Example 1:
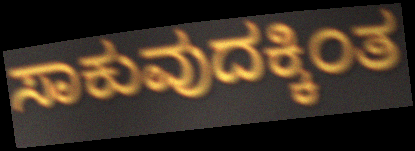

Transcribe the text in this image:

ಸಾಕುವುದಕ್ಕಿಂತ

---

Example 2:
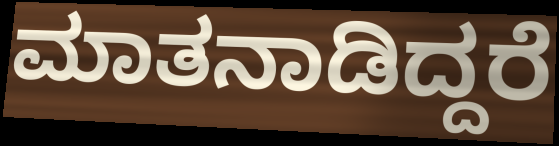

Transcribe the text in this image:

ಮಾತನಾಡಿದ್ದರೆ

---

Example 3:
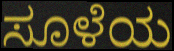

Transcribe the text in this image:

ಸೂಳೆಯ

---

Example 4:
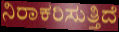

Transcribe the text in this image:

ನಿರಾಕರಿಸುತ್ತಿದೆ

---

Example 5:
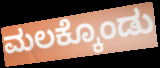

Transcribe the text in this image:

ಮಲಕ್ಕೊಂಡು